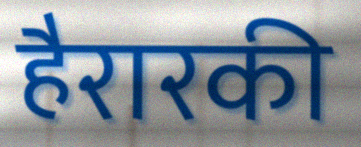
हैरारकी